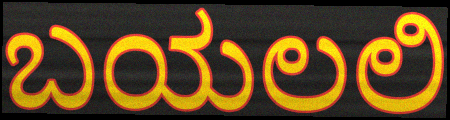
ಬಯಲಲಿ